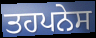
ਤਹਪਨੇਸ